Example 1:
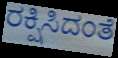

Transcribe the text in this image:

ರಕ್ಷಿಸಿದಂತೆ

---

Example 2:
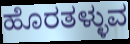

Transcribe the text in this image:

ಹೊರತಳ್ಳುವ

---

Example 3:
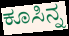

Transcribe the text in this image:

ಕೂಸಿನ್ನ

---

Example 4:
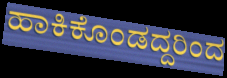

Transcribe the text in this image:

ಹಾಕಿಕೊಂಡದ್ದರಿಂದ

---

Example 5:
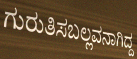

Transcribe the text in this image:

ಗುರುತಿಸಬಲ್ಲವನಾಗಿದ್ದ